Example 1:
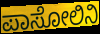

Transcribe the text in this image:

ಪಾಸೋಲಿನಿ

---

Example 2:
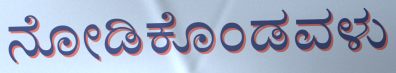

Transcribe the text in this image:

ನೋಡಿಕೊಂಡವಳು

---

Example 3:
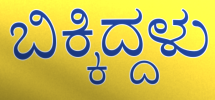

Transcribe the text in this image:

ಬಿಕ್ಕಿದ್ದಳು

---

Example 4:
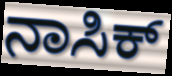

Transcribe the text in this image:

ನಾಸಿಕ್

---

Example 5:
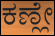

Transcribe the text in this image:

ಕಣ್ಲೇ